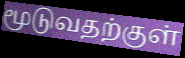
மூடுவதற்குள்